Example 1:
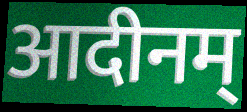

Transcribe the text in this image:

आदीनम्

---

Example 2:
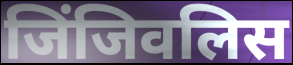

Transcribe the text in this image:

जिंजिवलिस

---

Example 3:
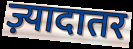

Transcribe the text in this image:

ज़्यादातर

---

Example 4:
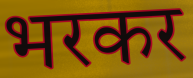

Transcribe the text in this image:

भरकर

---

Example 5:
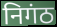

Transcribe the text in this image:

निगंठ